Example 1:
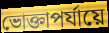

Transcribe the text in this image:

ভোক্তাপর্যায়ে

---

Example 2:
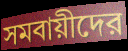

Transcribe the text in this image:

সমবায়ীদের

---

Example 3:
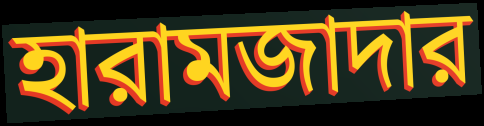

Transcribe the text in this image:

হারামজাদার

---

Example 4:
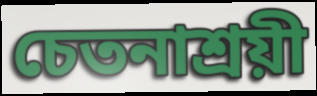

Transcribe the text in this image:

চেতনাশ্রয়ী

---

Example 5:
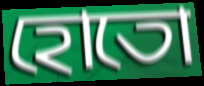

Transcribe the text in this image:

হোতো